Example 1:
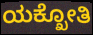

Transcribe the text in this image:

ಯಕ್ಖೋತಿ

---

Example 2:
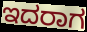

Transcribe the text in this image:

ಇದರಾಗ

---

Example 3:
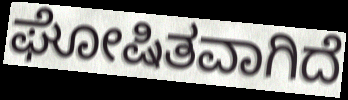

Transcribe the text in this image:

ಘೋಷಿತವಾಗಿದೆ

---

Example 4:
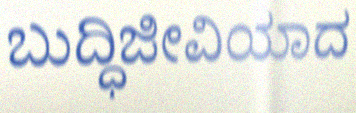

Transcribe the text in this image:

ಬುದ್ಧಿಜೀವಿಯಾದ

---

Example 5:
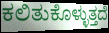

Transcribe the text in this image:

ಕಲಿತುಕೊಳ್ಳುತ್ತದೆ